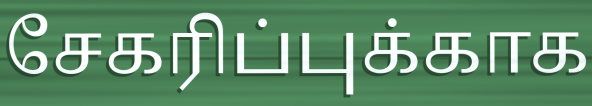
சேகரிப்புக்காக